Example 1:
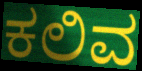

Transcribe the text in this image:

ಕಲಿವ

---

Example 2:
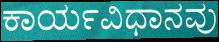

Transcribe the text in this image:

ಕಾರ್ಯವಿಧಾನವು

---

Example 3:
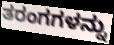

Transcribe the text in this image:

ತರಂಗಗಳನ್ನು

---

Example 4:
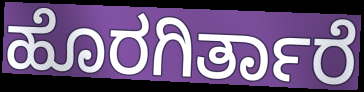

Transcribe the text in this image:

ಹೊರಗಿರ್ತಾರೆ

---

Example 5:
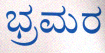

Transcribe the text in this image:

ಭ್ರಮರ